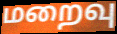
மறைவு